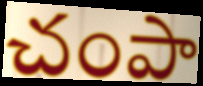
చంపా